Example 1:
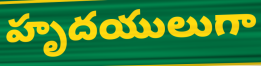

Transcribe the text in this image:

హృదయులుగా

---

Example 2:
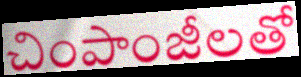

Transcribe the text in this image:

చింపాంజీలతో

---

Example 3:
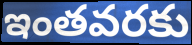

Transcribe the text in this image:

ఇంతవరకు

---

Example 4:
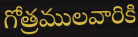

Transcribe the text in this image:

గోత్రములవారికి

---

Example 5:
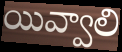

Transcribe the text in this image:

యివ్వాలి